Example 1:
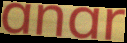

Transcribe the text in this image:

anar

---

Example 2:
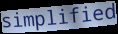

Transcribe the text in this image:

simplified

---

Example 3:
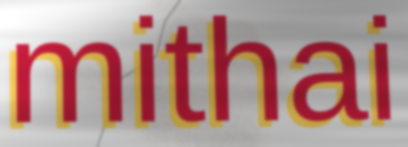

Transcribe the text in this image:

mithai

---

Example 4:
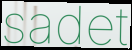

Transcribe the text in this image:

sadet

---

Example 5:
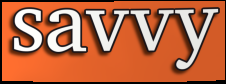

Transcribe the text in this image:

savvy